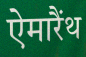
ऐमारैंथ